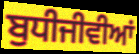
ਬੁਧੀਜੀਵੀਆਂ